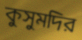
কুসুমদির